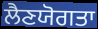
ਲੈਣਯੋਗਤਾ